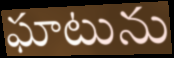
ఘాటును